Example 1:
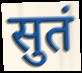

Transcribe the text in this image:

सुतं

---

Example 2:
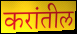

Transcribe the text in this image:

करांतील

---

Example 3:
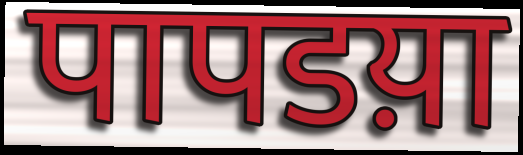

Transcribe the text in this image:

पापडय़ा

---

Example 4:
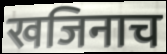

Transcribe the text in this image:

खजिनाच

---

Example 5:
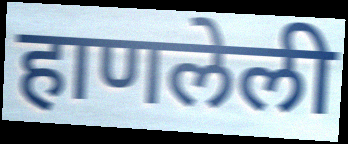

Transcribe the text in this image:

हाणलेली